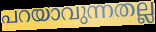
പറയാവുന്നതല്ല